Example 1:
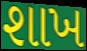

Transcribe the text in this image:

શાખ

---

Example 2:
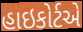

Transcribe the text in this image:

હાઇકોર્ટએ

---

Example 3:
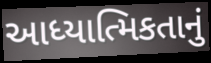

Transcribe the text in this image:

આધ્યાત્મિકતાનું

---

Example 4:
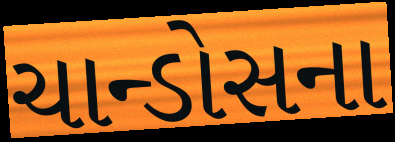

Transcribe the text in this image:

ચાન્ડોસના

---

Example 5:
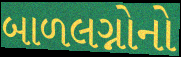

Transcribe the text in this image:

બાળલગ્નોનો